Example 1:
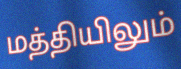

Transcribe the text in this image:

மத்தியிலும்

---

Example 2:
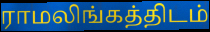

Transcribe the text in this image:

ராமலிங்கத்திடம்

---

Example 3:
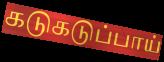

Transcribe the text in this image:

கடுகடுப்பாய்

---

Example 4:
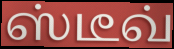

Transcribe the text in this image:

ஸ்டீவ்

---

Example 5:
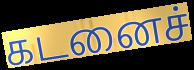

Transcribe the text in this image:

கடனைச்